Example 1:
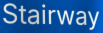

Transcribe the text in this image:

Stairway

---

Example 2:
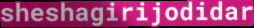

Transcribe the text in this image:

sheshagirijodidar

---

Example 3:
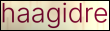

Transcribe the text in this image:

haagidre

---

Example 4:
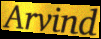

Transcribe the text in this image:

Arvind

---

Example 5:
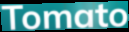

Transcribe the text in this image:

Tomato